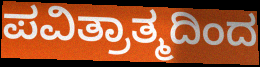
ಪವಿತ್ರಾತ್ಮದಿಂದ